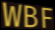
WBF